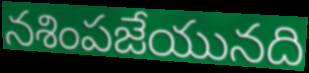
నశింపజేయునది